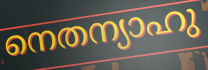
നെതന്യാഹു